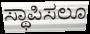
ಸ್ಥಾಪಿಸಲೂ